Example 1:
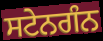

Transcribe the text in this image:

ਸਟੇਨਗੰਨ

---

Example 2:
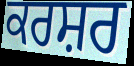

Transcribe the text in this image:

ਕਰਸ਼ਰ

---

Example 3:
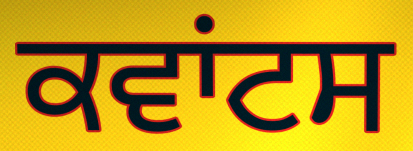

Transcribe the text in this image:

ਕਵਾਂਟਸ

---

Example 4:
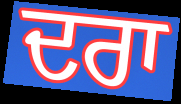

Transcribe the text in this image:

ਦਰਾ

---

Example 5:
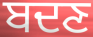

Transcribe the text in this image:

ਬਦਣ